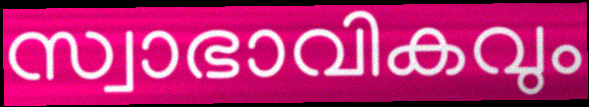
സ്വാഭാവികവും